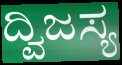
ದ್ವಿಜಸ್ಯ